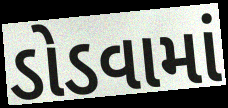
ડોડવામાં